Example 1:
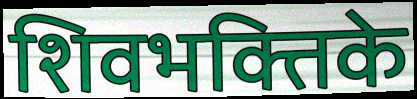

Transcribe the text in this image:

शिवभक्तिके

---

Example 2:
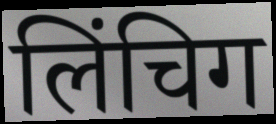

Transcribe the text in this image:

लिंचिग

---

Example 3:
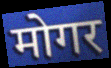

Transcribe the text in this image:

मोगर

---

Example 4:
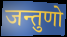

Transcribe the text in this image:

जन्तुणो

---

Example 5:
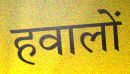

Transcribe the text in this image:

हवालों